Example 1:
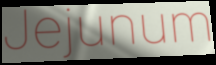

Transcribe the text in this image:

Jejunum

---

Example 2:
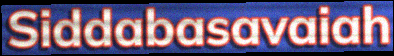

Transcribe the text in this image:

Siddabasavaiah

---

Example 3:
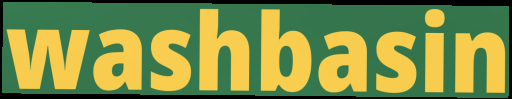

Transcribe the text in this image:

washbasin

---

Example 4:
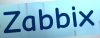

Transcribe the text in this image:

Zabbix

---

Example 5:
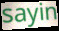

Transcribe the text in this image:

sayin